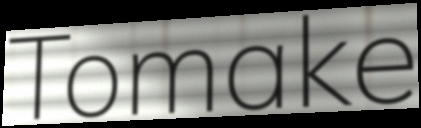
Tomake